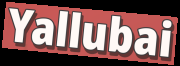
Yallubai